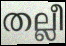
തല്ലീ